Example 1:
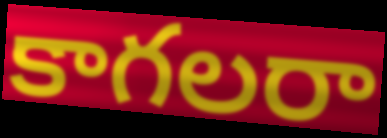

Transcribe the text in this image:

కాగలరా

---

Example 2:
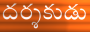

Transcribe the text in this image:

దర్శకుడు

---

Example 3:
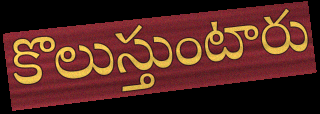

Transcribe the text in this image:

కొలుస్తుంటారు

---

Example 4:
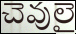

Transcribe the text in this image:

చెవులై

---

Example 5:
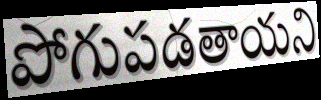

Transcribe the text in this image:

పోగుపడతాయని